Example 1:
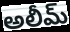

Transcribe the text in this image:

అలీమ్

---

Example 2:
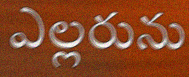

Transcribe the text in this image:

ఎల్లరును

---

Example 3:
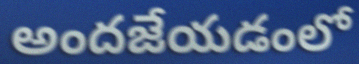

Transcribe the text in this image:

అందజేయడంలో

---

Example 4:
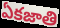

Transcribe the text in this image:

ఏకజాతి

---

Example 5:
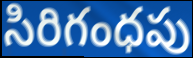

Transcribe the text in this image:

సిరిగంధపు